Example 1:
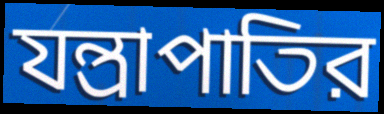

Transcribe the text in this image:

যন্ত্রাপাতির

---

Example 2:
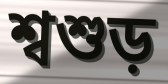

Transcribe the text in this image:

শ্বশুড়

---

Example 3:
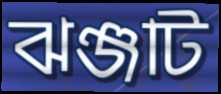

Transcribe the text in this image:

ঝঞ্জাট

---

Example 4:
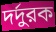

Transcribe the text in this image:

দর্দুরক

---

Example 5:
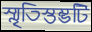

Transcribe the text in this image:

স্মৃতিস্তম্ভটি